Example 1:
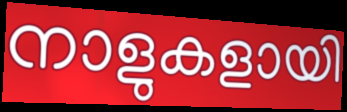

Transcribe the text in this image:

നാളുകളായി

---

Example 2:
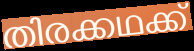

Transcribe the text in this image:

തിരക്കഥക്ക്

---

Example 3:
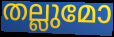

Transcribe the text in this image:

തല്ലുമോ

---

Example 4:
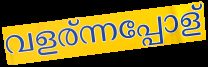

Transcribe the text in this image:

വളര്ന്നപ്പോള്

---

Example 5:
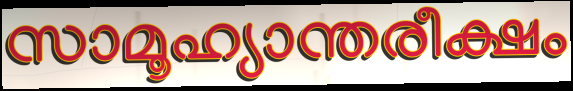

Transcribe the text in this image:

സാമൂഹ്യാന്തരീക്ഷം